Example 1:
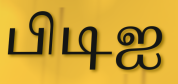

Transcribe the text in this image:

பிடிஐ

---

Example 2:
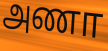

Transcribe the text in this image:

அணா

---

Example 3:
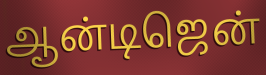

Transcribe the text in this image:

ஆன்டிஜென்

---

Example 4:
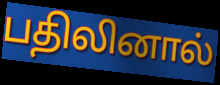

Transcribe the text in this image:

பதிலினால்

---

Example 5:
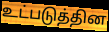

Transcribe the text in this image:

உட்படுத்தின